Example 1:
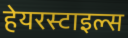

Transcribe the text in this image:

हेयरस्टाइल्स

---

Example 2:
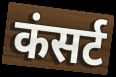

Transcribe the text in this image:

कंसर्ट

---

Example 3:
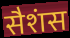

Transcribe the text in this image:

सैशंस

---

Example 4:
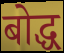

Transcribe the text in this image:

बोद्ध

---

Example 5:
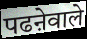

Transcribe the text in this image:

पढऩेवाले